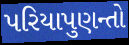
પરિયાપુણન્તો